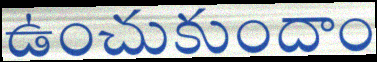
ఉంచుకుందాం